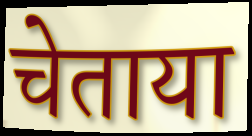
चेताया